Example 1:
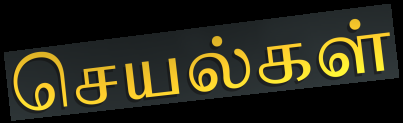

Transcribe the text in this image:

செயல்கள்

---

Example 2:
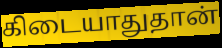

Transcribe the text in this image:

கிடையாதுதான்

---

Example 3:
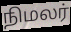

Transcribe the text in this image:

நிமலர்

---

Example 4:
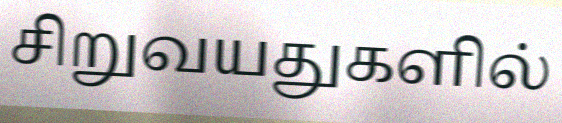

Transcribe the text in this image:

சிறுவயதுகளில்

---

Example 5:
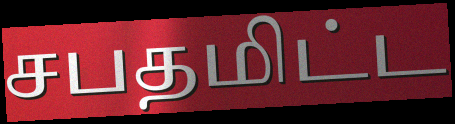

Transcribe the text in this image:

சபதமிட்ட